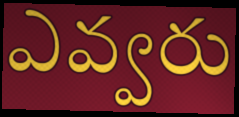
ఎవ్వరు